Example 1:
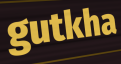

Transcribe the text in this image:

gutkha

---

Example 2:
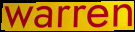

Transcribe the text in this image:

warren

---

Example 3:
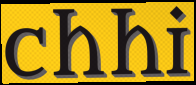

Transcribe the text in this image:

chhi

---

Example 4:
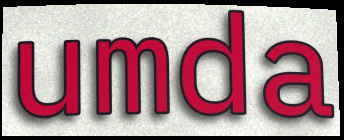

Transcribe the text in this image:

umda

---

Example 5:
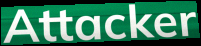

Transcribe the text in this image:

Attacker